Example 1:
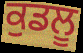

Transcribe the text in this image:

ਕੁਡਲੂ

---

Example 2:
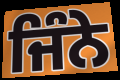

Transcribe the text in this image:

ਜਿੰਨੇ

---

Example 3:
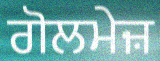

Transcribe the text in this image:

ਗੋਲਮੇਜ਼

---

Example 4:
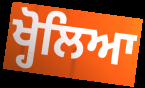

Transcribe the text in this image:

ਖ੍ਹੋਲਿਆ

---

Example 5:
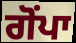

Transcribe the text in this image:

ਗੋਂਪਾ